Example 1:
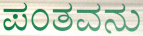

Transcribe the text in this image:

ಪಂತವನು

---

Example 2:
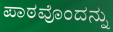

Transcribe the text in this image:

ಪಾಠವೊಂದನ್ನು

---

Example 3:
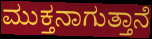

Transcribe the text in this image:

ಮುಕ್ತನಾಗುತ್ತಾನೆ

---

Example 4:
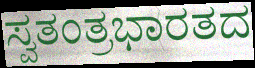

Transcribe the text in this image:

ಸ್ವತಂತ್ರಭಾರತದ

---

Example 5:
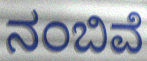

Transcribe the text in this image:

ನಂಬಿವೆ